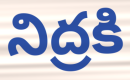
నిద్రకి